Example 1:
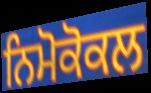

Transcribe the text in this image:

ਨਿਮੋਕੋਕਲ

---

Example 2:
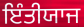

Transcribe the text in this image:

ਇੰਤੀਯਾਜ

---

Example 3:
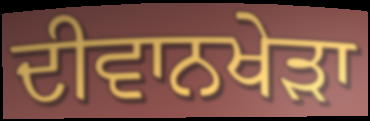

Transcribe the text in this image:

ਦੀਵਾਨਖੇੜਾ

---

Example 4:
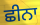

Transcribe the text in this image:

ਛੀਨਾ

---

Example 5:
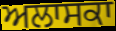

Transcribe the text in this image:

ਅਲਾਸਕਾ